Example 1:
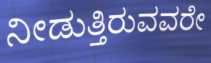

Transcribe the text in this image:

ನೀಡುತ್ತಿರುವವರೇ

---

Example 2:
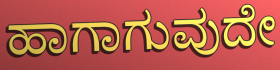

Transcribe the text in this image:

ಹಾಗಾಗುವುದೇ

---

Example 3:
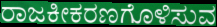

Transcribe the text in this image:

ರಾಜಕೀಕರಣಗೊಳಿಸುವ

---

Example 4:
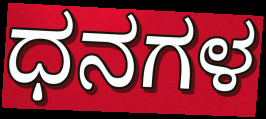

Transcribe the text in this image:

ಧನಗಳ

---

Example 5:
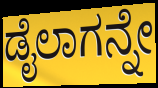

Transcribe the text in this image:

ಡೈಲಾಗನ್ನೇ